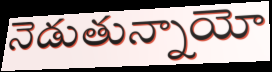
నెడుతున్నాయో